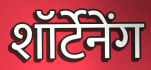
शॉर्टेनेंग